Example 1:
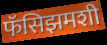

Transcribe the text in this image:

फॅसिझमशी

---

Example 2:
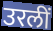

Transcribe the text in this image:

उरलीं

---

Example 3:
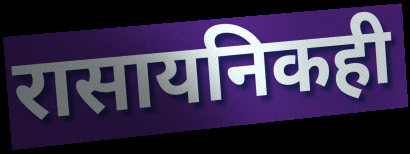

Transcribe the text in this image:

रासायनिकही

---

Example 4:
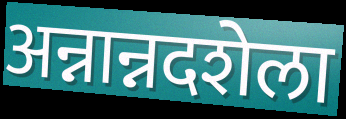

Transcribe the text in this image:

अन्नान्नदशेला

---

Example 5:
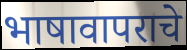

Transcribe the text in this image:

भाषावापराचे